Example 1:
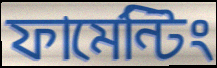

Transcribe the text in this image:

ফার্মেন্টিং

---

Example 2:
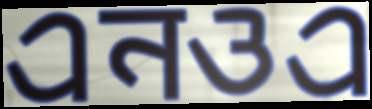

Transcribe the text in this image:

এনওএ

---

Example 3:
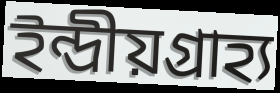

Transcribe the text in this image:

ইন্দ্রীয়গ্রাহ্য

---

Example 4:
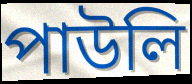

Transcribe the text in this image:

পাউলি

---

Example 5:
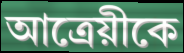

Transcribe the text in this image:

আত্রেয়ীকে